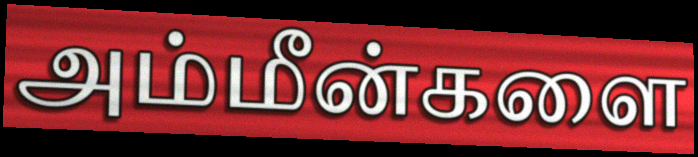
அம்மீன்களை